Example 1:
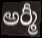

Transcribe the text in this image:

అర్మీ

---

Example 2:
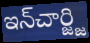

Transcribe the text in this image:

ఇన్‌చార్జ్జి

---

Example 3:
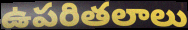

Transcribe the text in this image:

ఉపరితలాలు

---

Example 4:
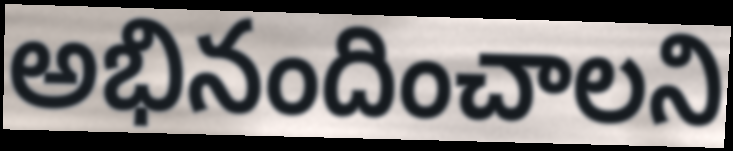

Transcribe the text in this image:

అభినందించాలని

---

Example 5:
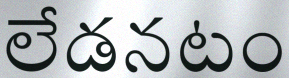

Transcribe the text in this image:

లేడనటం